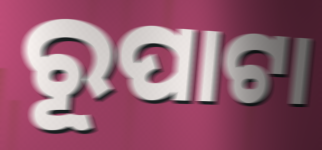
ରୂପାଟା